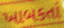
ખાબકતાં